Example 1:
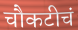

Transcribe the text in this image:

चौकटीचं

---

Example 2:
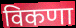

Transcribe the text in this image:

विकणा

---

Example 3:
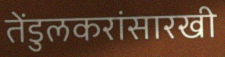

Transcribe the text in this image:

तेंडुलकरांसारखी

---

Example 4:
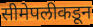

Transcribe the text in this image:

सीमेपलीकडून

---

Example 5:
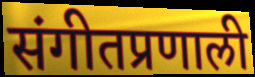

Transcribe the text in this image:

संगीतप्रणाली